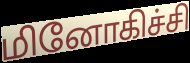
மினோகிச்சி